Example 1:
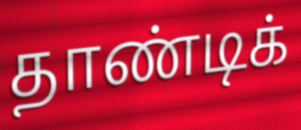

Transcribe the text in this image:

தாண்டிக்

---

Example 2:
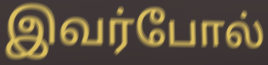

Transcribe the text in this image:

இவர்போல்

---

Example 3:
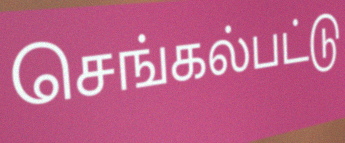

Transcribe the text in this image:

செங்கல்பட்டு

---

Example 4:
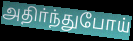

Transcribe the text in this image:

அதிர்ந்துபோய்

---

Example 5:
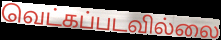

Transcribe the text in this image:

வெட்கப்படவில்லை